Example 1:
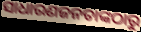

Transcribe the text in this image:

ସାଧାରଣଜନତାଙ୍କଠାରୁ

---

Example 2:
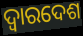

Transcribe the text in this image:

ଦ୍ଵାରଦେଶ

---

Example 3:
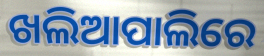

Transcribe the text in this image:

ଖଲିଆପାଲିରେ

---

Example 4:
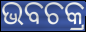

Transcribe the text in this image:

ଭବଚକ୍ର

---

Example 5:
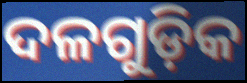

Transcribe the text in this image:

ଦଳଗୁଡ଼ିକ